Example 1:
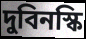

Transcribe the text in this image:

দুবিনস্কি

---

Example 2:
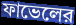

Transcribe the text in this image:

ফাভেলের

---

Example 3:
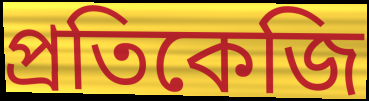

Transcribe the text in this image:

প্রতিকেজি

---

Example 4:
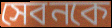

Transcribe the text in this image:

সেবনকে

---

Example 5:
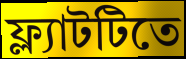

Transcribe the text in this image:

ফ্ল্যাটটিতে